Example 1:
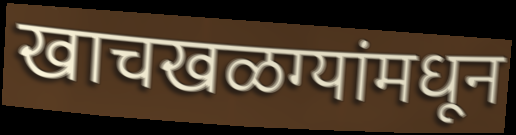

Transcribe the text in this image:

खाचखळग्यांमधून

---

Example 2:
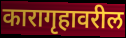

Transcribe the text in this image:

कारागृहावरील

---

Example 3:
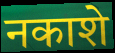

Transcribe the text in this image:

नकाशे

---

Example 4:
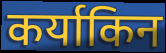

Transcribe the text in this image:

कर्याकिन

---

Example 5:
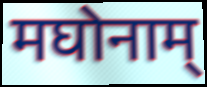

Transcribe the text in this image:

मघोनाम्